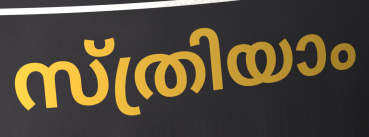
സ്ത്രിയാം